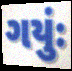
ગયુંઃ